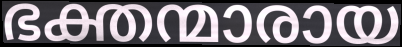
ഭക്തന്മാരായ